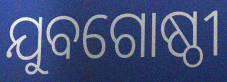
ଯୁବଗୋଷ୍ଠୀ